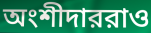
অংশীদাররাও